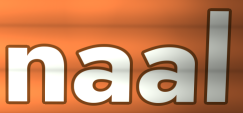
naal